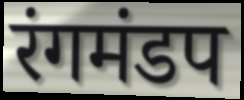
रंगमंडप